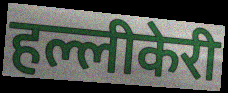
हल्लीकेरी